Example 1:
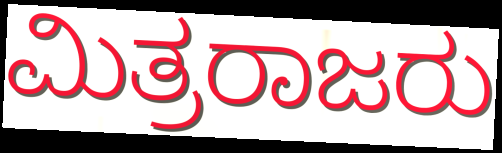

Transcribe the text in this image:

ಮಿತ್ರರಾಜರು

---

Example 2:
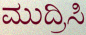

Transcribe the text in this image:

ಮುದ್ರಿಸಿ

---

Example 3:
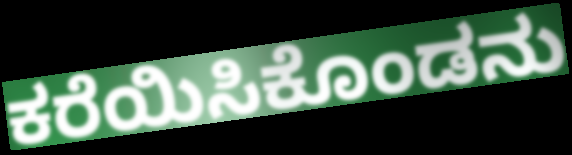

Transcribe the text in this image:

ಕರೆಯಿಸಿಕೊಂಡನು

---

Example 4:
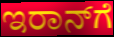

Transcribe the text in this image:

ಇರಾನ್‌ಗೆ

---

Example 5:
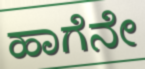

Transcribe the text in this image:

ಹಾಗೆನೇ